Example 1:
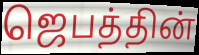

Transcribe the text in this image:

ஜெபத்தின்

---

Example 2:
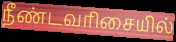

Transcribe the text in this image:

நீண்டவரிசையில்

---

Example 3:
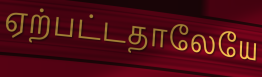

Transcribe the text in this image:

ஏற்பட்டதாலேயே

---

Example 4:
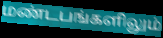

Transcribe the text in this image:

மண்டபங்களிலும்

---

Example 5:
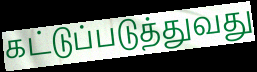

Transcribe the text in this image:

கட்டுப்படுத்துவது